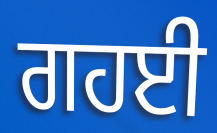
ਗਹਈ